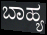
ಬಾಹ್ಯ